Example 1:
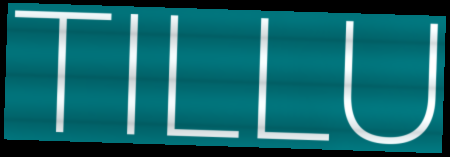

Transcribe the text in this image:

TILLU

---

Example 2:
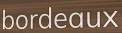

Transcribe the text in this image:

bordeaux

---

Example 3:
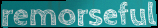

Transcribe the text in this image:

remorseful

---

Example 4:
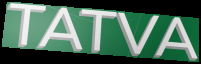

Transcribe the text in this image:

TATVA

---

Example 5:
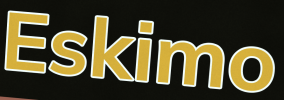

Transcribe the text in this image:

Eskimo